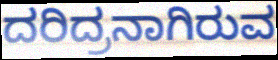
ದರಿದ್ರನಾಗಿರುವ